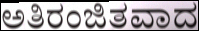
ಅತಿರಂಜಿತವಾದ